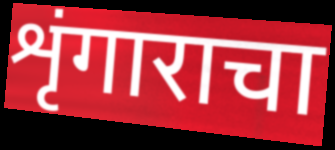
शृंगाराचा